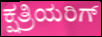
ಕ್ಷತ್ರಿಯರಿಗ್